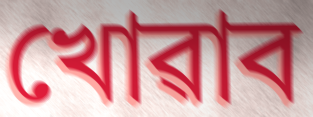
খোৱাব